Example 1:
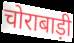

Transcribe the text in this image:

चोराबाड़ी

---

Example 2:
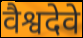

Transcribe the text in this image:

वैश्वदेवे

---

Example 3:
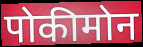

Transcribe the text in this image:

पोकीमोन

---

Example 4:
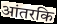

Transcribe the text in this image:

आंतरकि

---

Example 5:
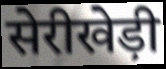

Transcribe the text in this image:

सेरीखेड़ी